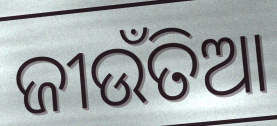
ଜୀଉଁତିଆ